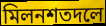
মিলনশতদলে